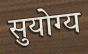
सुयोग्य